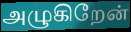
அழுகிறேன்